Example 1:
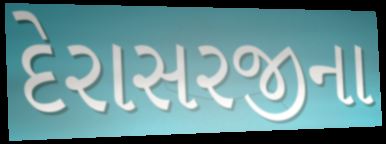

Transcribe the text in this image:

દેરાસરજીના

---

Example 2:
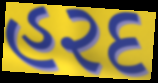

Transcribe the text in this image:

હરદ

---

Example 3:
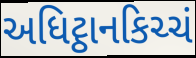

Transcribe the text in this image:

અધિટ્ઠાનકિચ્ચં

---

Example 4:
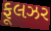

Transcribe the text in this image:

ફૂલઝર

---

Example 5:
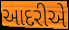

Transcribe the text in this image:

આદરીએ